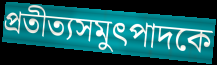
প্রতীত্যসমুৎপাদকে